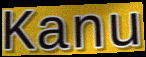
Kanu